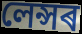
লেন্সৰ